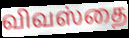
விவஸ்தை